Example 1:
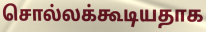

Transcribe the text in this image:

சொல்லக்கூடியதாக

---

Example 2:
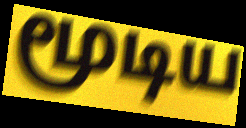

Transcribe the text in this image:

மூடிய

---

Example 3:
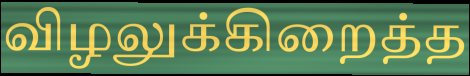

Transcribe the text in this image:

விழலுக்கிறைத்த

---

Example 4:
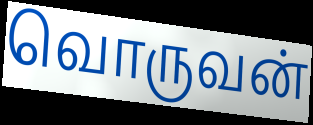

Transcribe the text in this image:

வொருவன்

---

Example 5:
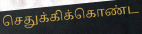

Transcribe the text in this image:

செதுக்கிக்கொண்ட